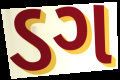
ડગ